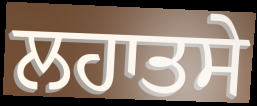
ਲਹਾਤਸੇ